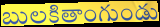
బులకితాంగుండు